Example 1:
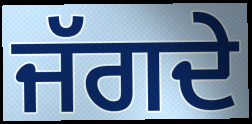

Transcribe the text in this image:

ਜੱਗਦੇ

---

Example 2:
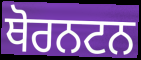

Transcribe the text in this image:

ਥੋਰਨਟਨ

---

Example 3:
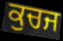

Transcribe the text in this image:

ਕੁਚਜ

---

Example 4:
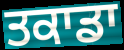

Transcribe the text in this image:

ਤਕਾਡਾ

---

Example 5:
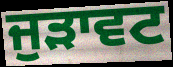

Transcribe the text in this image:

ਜੁੜਾਵਟ